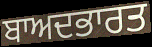
ਬਾਅਦਭਾਰਤ